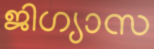
ജിഗ്യാസ